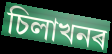
চিলাখনৰ